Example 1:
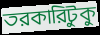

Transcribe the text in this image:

তরকারিটুকু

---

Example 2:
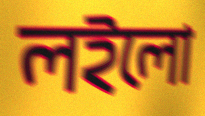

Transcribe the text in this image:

লইলো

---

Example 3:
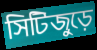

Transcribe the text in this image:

সিটিজুড়ে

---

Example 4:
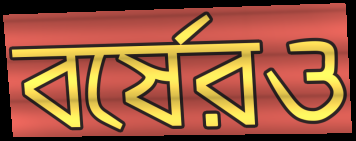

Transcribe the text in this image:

বর্ষেরও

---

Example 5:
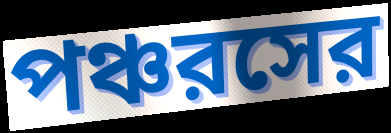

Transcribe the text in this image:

পঞ্চরসের